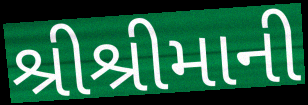
શ્રીશ્રીમાની